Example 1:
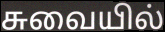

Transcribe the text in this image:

சுவையில்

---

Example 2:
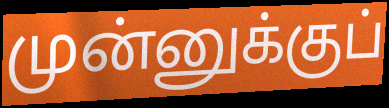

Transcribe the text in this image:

முன்னுக்குப்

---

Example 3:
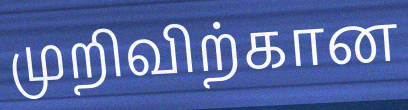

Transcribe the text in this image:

முறிவிற்கான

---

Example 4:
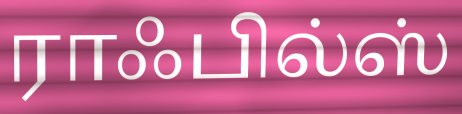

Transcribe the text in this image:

ராஃபில்ஸ்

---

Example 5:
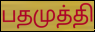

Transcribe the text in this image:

பதமுத்தி